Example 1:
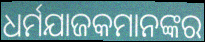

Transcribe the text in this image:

ଧର୍ମଯାଜକମାନଙ୍କର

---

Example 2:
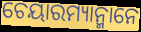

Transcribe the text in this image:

ଚେୟାରମ୍ୟାନ୍ମାନେ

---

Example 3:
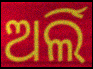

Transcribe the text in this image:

ଅର୍ଲି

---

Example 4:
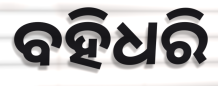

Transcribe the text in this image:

ବହିଧରି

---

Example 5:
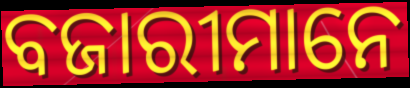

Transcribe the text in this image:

ବଜାରୀମାନେ